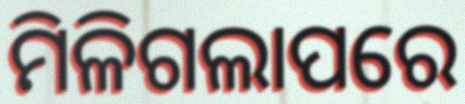
ମିଳିଗଲାପରେ